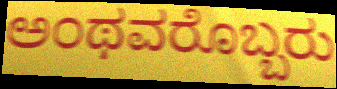
ಅಂಥವರೊಬ್ಬರು